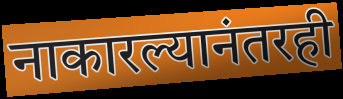
नाकारल्यानंतरही